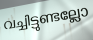
വച്ചിട്ടുണ്ടല്ലോ